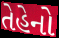
તેહેનો